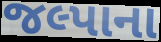
જલ્પાના